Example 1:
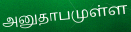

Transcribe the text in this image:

அனுதாபமுள்ள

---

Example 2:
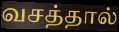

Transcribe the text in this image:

வசத்தால்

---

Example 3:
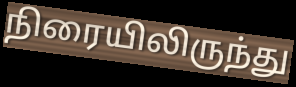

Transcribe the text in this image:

நிரையிலிருந்து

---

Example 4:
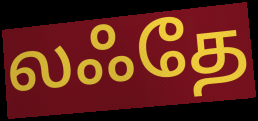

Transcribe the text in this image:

லஃதே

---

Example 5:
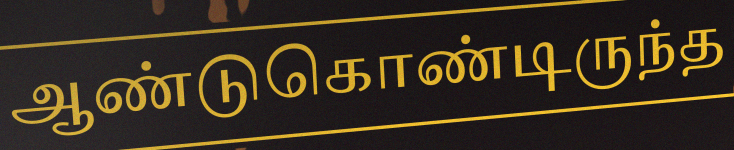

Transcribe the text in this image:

ஆண்டுகொண்டிருந்த